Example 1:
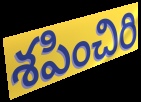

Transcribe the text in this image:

శపించిరి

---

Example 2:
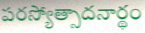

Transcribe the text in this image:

పరస్యోత్సాదనార్థం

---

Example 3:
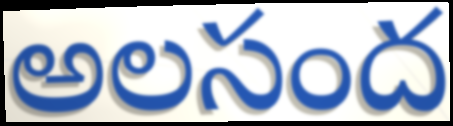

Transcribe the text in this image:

అలసంద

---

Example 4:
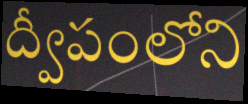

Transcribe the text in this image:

ద్వీపంలోని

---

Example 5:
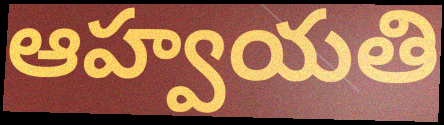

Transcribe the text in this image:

ఆహ్వయతి